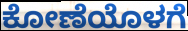
ಕೋಣೆಯೊಳಗೆ